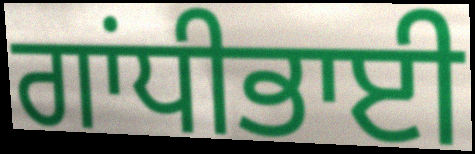
ਗਾਂਧੀਭਾਈ